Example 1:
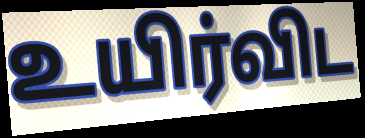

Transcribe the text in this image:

உயிர்விட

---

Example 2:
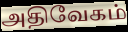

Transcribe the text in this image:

அதிவேகம்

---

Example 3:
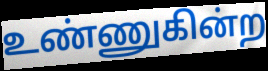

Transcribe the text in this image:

உண்ணுகின்ற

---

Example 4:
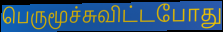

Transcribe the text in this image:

பெருமூச்சுவிட்டபோது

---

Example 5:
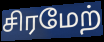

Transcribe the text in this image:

சிரமேற்